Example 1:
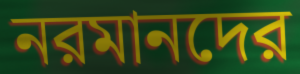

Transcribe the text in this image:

নরমানদের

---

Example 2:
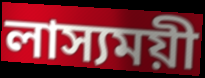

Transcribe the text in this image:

লাস্যময়ী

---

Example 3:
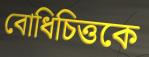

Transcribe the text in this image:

বোধিচিত্তকে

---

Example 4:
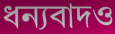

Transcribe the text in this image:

ধন্যবাদও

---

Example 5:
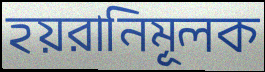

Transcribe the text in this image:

হয়রানিমূলক